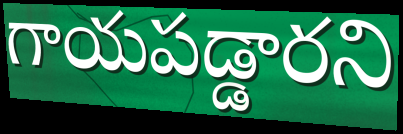
గాయపడ్డారని